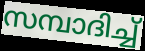
സമ്പാദിച്ച്